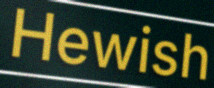
Hewish